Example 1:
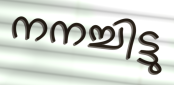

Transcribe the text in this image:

നനച്ചിട്ടു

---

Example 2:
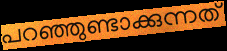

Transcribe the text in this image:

പറഞ്ഞുണ്ടാക്കുന്നത്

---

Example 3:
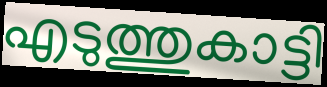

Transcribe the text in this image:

എടുത്തുകാട്ടി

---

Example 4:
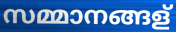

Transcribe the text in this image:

സമ്മാനങ്ങള്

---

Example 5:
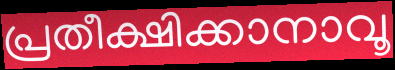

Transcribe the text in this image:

പ്രതീക്ഷിക്കാനാവൂ